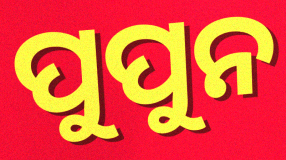
ପୁପୁନ